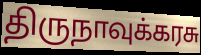
திருநாவுக்கரசு